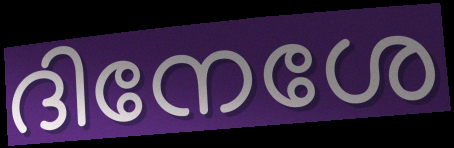
ദിനേശേ